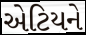
એટિયને